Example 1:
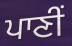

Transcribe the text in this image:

ਪਾਣੀਂ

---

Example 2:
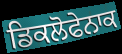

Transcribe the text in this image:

ਡਿਕਲੋਫੇਨਾਕ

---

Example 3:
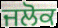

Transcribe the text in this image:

ਜਲੋਕ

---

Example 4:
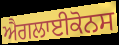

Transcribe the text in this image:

ਐਗਲਾਈਕੋਨਸ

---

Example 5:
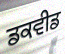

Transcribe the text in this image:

ਡਕਵੀਡ